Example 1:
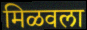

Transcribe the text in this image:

मिळवला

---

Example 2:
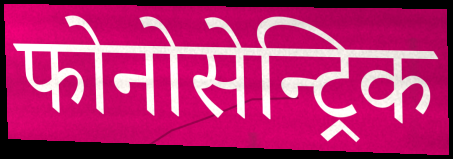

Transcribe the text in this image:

फोनोसेन्ट्रिक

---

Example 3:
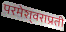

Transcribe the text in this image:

परमेश्वराप्रती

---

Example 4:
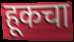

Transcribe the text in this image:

हूकचा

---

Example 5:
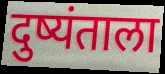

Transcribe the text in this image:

दुष्यंताला